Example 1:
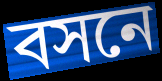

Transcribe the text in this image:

বসনে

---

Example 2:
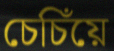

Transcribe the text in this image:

চেচিঁয়ে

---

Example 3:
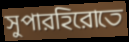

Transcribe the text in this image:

সুপারহিরোতে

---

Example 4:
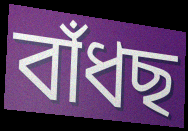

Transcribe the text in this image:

বাঁধছ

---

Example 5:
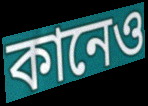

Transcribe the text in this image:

কানেও